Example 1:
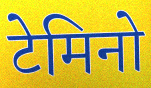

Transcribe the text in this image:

टेमिनो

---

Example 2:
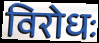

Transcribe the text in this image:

विरोधः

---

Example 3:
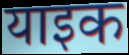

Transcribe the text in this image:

याइक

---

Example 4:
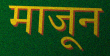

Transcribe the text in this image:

माजून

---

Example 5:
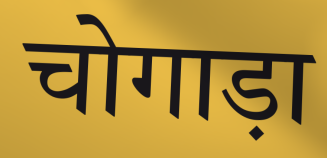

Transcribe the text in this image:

चोगाड़ा